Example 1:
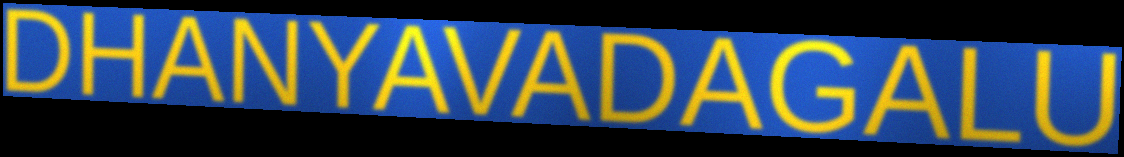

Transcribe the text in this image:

DHANYAVADAGALU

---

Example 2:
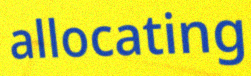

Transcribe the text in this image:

allocating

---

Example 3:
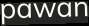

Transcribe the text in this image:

pawan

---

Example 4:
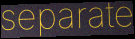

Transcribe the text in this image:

separate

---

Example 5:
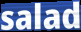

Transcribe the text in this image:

salad